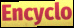
Encyclo